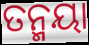
ତନ୍ମୟା